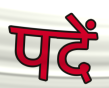
पदें